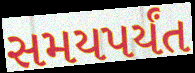
સમયપર્યંત